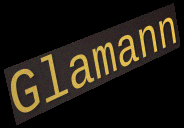
Glamann